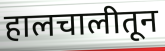
हालचालीतून